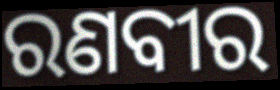
ରଣବୀର